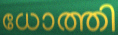
ധോത്തി